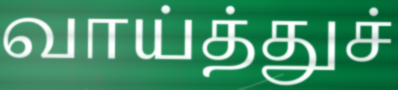
வாய்த்துச்